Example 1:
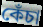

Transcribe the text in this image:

কেঁচা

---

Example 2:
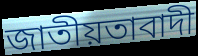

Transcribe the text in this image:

জাতীয়তাবাদী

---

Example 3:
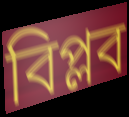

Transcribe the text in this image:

বিপ্লব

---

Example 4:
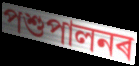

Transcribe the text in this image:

পশুপালনৰ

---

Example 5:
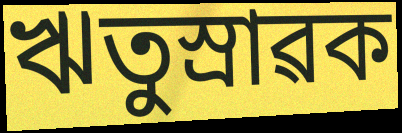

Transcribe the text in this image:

ঋতুস্ৰাৱক